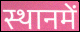
स्थानमें